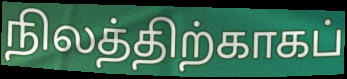
நிலத்திற்காகப்